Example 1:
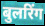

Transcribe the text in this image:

बुलरिंग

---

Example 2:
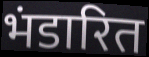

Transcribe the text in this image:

भंडारित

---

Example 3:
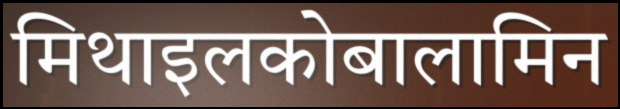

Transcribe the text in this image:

मिथाइलकोबालामिन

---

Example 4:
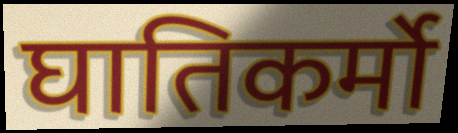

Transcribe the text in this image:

घातिकर्मो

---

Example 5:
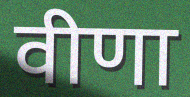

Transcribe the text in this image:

वीणा